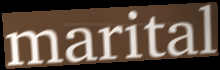
marital